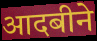
आदबीने